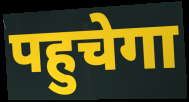
पहुचेगा